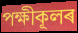
পক্ষীকূলৰ